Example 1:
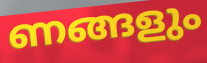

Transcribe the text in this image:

ണങ്ങളും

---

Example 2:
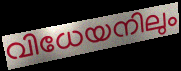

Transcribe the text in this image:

വിധേയനിലും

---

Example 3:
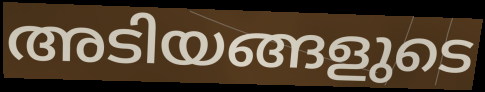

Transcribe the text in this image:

അടിയങ്ങളുടെ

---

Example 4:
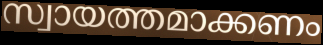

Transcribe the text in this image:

സ്വായത്തമാക്കണം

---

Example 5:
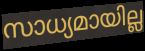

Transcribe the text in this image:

സാധ്യമായില്ല